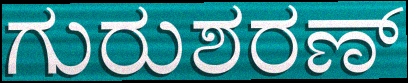
ಗುರುಶರಣ್